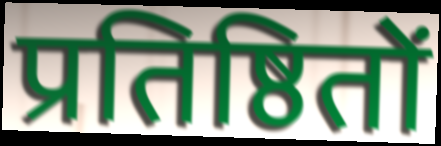
प्रतिष्ठितों